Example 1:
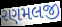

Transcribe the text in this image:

રણમલજી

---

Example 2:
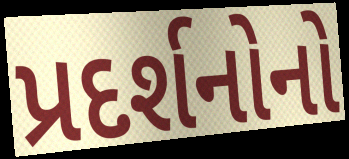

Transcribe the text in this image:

પ્રદર્શનોનો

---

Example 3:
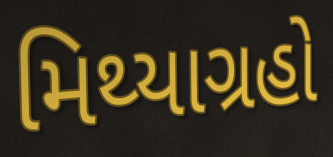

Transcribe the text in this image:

મિથ્યાગ્રહો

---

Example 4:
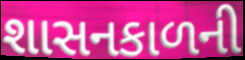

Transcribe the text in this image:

શાસનકાળની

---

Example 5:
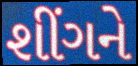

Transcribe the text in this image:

શીંગને